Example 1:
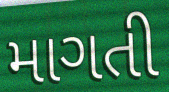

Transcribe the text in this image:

માગતી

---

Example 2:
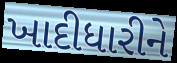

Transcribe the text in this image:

ખાદીધારીને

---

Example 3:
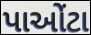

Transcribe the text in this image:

પાઓંટા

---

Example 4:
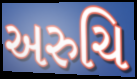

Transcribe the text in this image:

અરુચિ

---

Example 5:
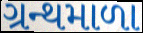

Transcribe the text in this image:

ગ્રન્થમાળા